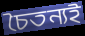
চৈতন্যই